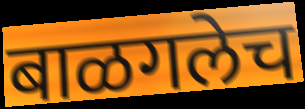
बाळगलेच